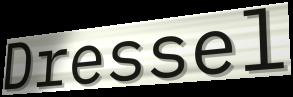
Dressel